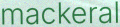
mackeral